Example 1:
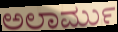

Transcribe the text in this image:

ಅಲಾರ್ಮು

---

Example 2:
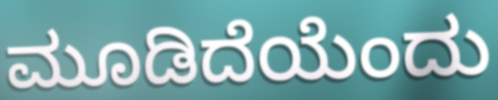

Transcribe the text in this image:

ಮೂಡಿದೆಯೆಂದು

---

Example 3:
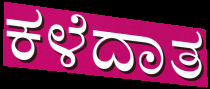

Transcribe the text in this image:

ಕಳೆದಾತ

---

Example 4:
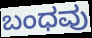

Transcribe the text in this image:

ಬಂಧವು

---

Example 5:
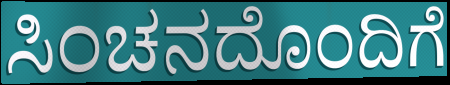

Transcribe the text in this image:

ಸಿಂಚನದೊಂದಿಗೆ